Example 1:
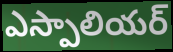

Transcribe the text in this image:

ఎస్పాలియర్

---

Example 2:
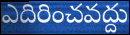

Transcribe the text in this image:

ఎదిరించవద్దు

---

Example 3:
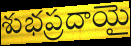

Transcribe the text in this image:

శుభప్రదాయై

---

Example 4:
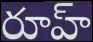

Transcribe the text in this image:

రూహ్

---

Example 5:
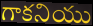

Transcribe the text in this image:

గాకనియు